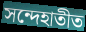
সন্দেহাতীত